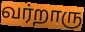
வர்றாரு